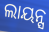
ଲାୟନ୍ସ